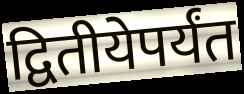
द्वितीयेपर्यंत